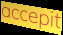
accepit